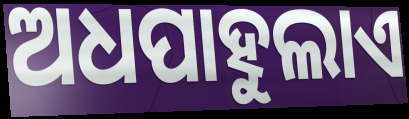
ଅଧପାହୁଲାଏ